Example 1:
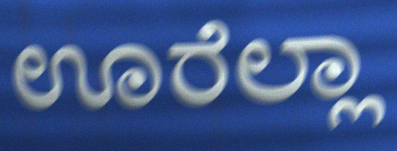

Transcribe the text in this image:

ಊರೆಲ್ಲಾ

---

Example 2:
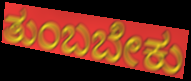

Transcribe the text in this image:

ತುಂಬಬೇಕು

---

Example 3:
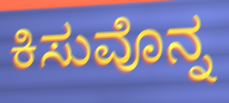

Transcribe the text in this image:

ಕಿಸುವೊನ್ನ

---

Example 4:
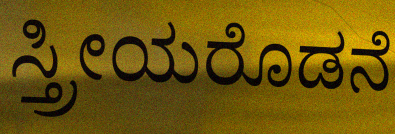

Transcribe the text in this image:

ಸ್ತ್ರೀಯರೊಡನೆ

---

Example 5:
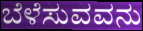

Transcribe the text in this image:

ಬೆಳೆಸುವವನು